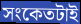
সংকেতটাই